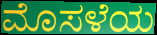
ಮೊಸಳೆಯ